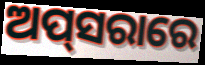
ଅପ୍‌ସରାରେ